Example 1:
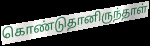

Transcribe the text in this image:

கொண்டுதானிருந்தாள்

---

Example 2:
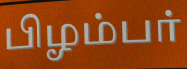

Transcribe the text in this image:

பிழம்பர்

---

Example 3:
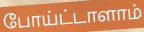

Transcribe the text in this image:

போய்ட்டாளாம்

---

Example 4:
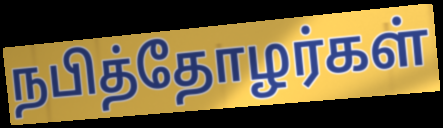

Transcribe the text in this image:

நபித்தோழர்கள்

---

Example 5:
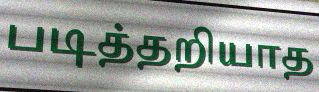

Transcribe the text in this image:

படித்தறியாத